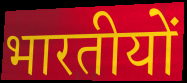
भारतीयों